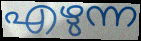
എഴുന്ന